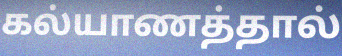
கல்யாணத்தால்